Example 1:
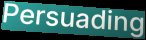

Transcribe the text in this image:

Persuading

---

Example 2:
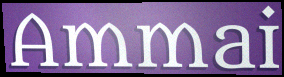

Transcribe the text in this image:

Ammai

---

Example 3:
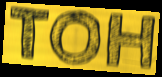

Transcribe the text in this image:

TOH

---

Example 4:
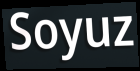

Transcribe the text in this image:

Soyuz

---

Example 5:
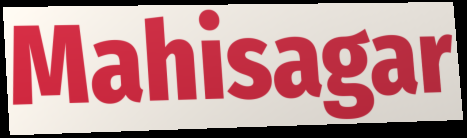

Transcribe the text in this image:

Mahisagar